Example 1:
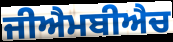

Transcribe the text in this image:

ਜੀਐਮਬੀਐਚ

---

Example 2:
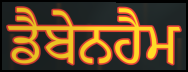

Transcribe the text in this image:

ਡੈਬੇਨਹੈਮ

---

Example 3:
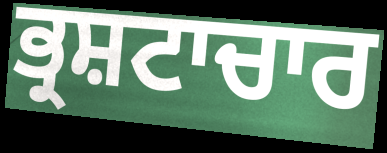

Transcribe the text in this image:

ਭ੍ਰਸ਼ਟਾਚਾਰ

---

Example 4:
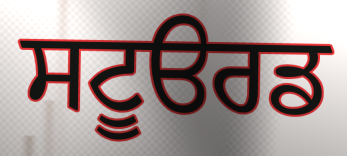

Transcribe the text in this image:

ਸਟੂੳਰਡ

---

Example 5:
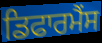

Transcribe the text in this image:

ਡਿਫਾਰਮੈਂਸ